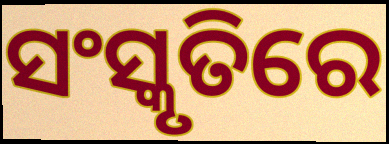
ସଂସ୍କୃତିରେ